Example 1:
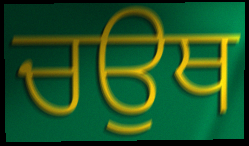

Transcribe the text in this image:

ਚਉਥ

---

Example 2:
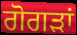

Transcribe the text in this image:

ਗੋਗੜਾਂ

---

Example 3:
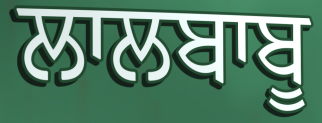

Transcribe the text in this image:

ਲਾਲਬਾਬੂ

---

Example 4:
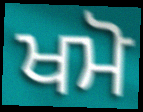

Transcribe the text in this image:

ਖਮੋ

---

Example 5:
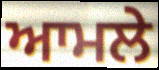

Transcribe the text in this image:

ਆਮਲੇ